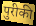
पुरीकी